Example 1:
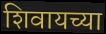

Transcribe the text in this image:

शिवायच्या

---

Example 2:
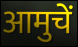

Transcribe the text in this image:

आमुचें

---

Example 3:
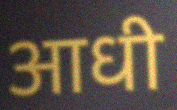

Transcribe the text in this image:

आधी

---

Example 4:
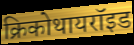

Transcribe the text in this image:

क्रिकोथायरॉइड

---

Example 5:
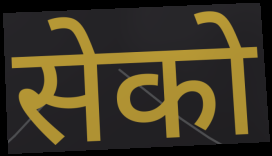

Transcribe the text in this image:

सेको